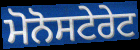
ਮੋਨੋਸਟੇਰੇਟ